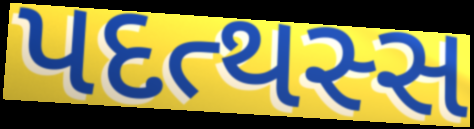
પદત્થસ્સ